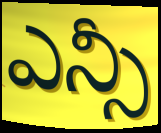
ఎన్సీ